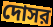
দোসর